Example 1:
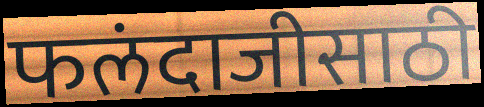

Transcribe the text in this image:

फलंदाजीसाठी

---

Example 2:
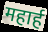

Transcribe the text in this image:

महार्ह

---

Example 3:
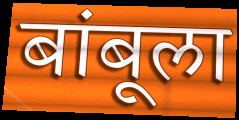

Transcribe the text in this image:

बांबूला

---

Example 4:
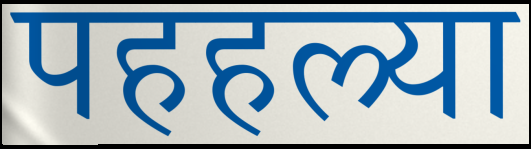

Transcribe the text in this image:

पहहल्या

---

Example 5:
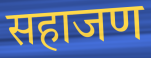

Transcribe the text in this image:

सहाजण